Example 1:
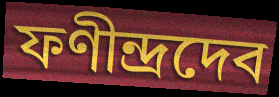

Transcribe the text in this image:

ফণীন্দ্রদেব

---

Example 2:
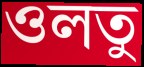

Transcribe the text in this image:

ওলতু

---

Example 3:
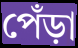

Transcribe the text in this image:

পেঁড়া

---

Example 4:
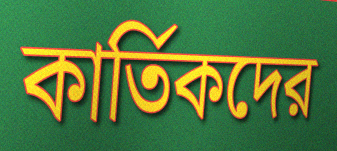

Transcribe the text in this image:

কার্তিকদের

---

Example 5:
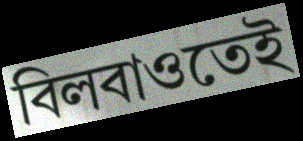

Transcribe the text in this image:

বিলবাওতেই